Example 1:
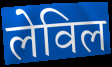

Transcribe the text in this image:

लेविल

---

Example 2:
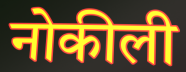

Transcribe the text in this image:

नोकीली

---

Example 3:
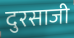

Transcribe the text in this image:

दुरसाजी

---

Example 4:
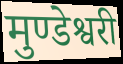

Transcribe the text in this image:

मुण्डेश्वरी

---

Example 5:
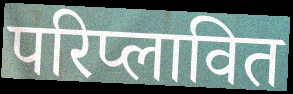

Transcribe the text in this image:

परिप्लावित